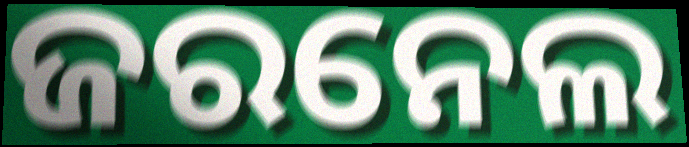
ଜରନେଲ